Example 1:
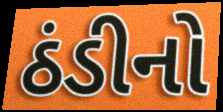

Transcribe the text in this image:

ઠંડીનો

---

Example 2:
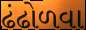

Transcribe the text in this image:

ઢંઢોળવા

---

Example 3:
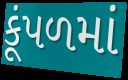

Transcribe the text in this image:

કૂંપળમાં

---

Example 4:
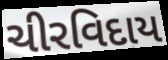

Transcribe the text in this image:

ચીરવિદાય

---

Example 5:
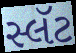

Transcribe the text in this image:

સ્લૅટ